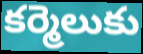
కర్మెలుకు